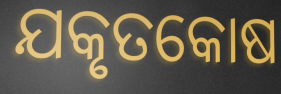
ଯକୃତକୋଷ